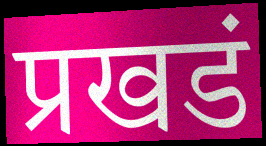
प्रखडं